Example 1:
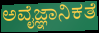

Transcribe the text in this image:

ಅವೈಜ್ಞಾನಿಕತೆ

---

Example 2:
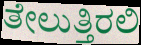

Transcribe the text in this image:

ತೇಲುತ್ತಿರಲಿ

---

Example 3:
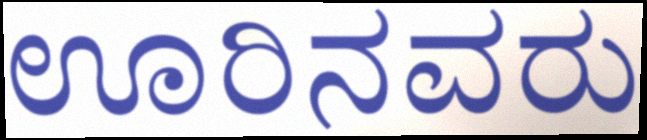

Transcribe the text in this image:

ಊರಿನವರು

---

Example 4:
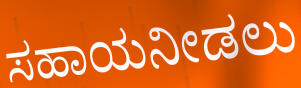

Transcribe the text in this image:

ಸಹಾಯನೀಡಲು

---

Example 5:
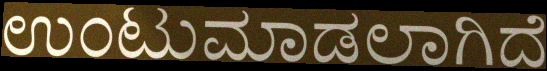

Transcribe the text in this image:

ಉಂಟುಮಾಡಲಾಗಿದೆ